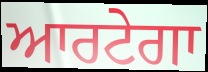
ਆਰਟੇਗਾ